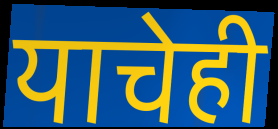
याचेही